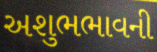
અશુભભાવની